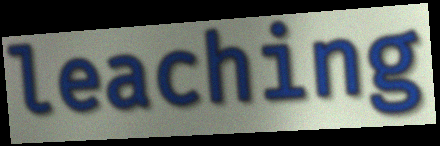
leaching